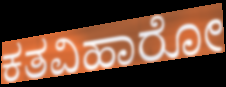
ಕತವಿಹಾರೋ